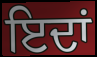
ਇਦਾਂ